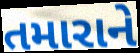
તમારાને